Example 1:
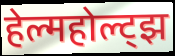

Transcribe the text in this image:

हेल्महोल्ट्झ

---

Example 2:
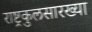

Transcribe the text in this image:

राष्ट्रकुलसारख्या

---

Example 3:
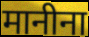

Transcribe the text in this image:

मानीना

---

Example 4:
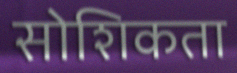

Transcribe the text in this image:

सोशिकता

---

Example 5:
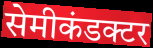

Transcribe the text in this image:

सेमीकंडक्टर